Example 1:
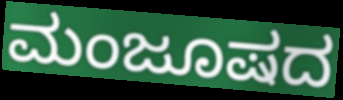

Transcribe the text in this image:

ಮಂಜೂಷದ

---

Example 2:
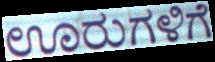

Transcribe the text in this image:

ಊರುಗಳಿಗೆ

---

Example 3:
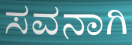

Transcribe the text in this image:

ಸವನಾಗಿ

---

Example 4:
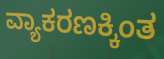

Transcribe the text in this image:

ವ್ಯಾಕರಣಕ್ಕಿಂತ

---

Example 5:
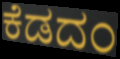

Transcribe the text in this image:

ಕೆಡದಂ